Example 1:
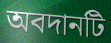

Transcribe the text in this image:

অবদানটি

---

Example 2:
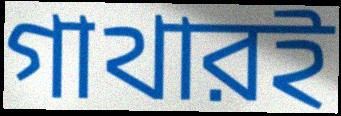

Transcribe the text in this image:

গাথারই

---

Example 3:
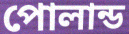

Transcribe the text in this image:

পোলান্ড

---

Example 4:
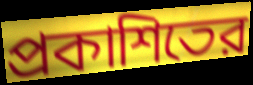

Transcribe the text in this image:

প্রকাশিতের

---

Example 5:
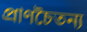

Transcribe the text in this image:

প্রাণচৈতন্য